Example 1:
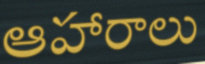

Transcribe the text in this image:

ఆహారాలు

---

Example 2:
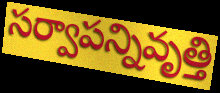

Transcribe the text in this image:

సర్వాపన్నివృత్తి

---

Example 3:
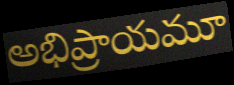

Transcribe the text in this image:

అభిప్రాయమూ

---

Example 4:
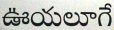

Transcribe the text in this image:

ఊయలూగే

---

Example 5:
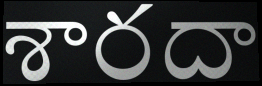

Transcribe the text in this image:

శారదా